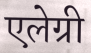
एलेग्री